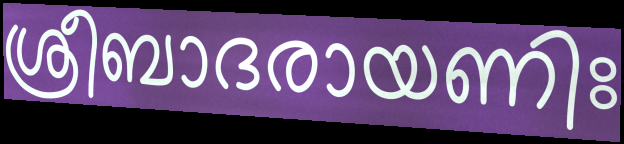
ശ്രീബാദരായണിഃ